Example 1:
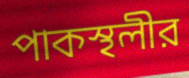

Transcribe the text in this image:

পাকস্থলীর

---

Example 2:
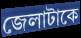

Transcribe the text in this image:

জেলাটাকে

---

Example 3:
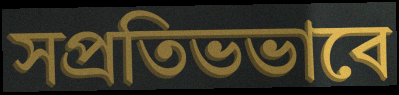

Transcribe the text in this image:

সপ্রতিভভাবে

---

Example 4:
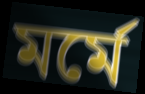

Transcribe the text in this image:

মর্মে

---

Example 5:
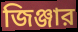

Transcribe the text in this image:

জিঞ্জার